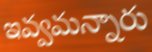
ఇవ్వమన్నారు